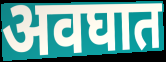
अवघात